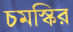
চমস্কির